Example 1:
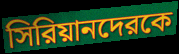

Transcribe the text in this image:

সিরিয়ানদেরকে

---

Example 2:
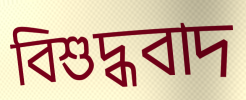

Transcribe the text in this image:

বিশুদ্ধবাদ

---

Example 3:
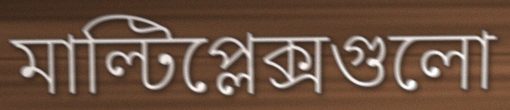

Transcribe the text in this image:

মাল্টিপ্লেক্সগুলো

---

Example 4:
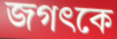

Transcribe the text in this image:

জগৎকে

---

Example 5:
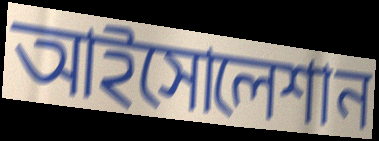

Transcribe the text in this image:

আইসোলেশান